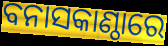
ବନାସକାଣ୍ଠାରେ